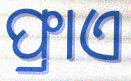
ଫ୍ରାଏ